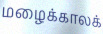
மழைக்காலக்